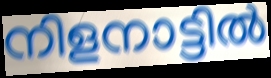
നിളനാട്ടിൽ